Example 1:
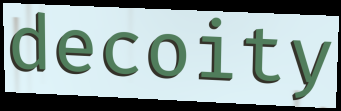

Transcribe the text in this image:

decoity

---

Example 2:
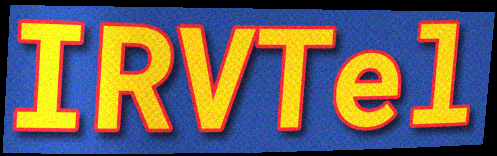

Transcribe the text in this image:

IRVTel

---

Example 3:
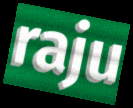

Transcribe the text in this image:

raju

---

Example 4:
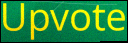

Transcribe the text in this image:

Upvote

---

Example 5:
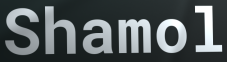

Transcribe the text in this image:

Shamol